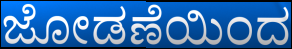
ಜೋಡಣೆಯಿಂದ